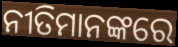
ନୀତିମାନଙ୍କରେ